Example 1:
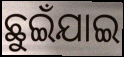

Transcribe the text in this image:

ଛୁଇଁଯାଇ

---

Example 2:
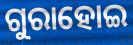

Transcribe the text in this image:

ଗୁରାହୋଇ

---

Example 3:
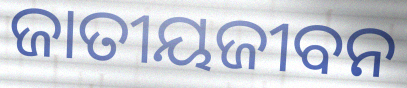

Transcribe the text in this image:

ଜାତୀୟଜୀବନ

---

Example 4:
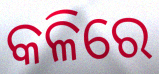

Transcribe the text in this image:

କଳିରେ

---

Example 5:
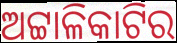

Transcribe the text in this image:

ଅଟ୍ଟାଳିକାଟିର